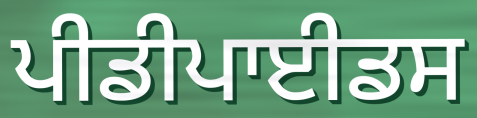
ਪੀਡੀਪਾਈਡਸ